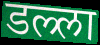
डल्ला